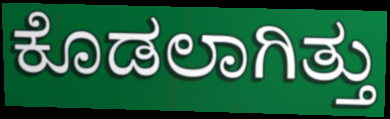
ಕೊಡಲಾಗಿತ್ತು